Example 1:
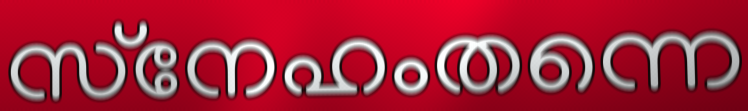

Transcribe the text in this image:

സ്‌നേഹംതന്നെ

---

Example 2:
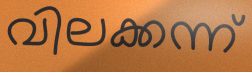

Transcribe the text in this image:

വിലക്കന്ന്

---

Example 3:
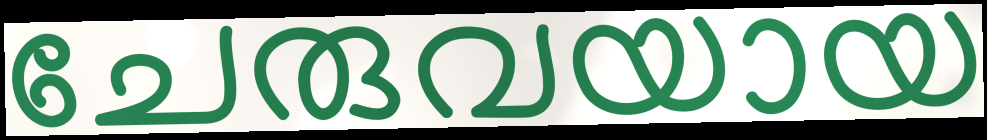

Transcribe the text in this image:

ചേരുവയായ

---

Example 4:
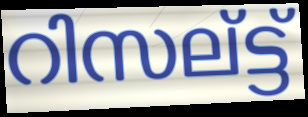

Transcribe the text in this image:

റിസല്ട്ട്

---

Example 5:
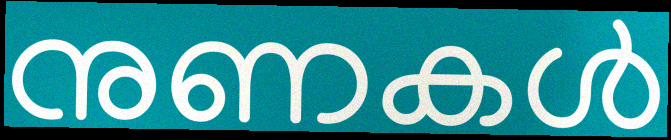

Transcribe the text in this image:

നുണകൾ